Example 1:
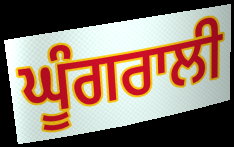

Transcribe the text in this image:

ਘੂੰਗਰਾਲੀ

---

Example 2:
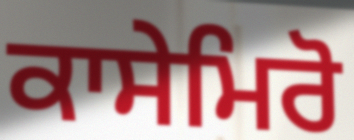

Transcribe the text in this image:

ਕਾਸੇਮਿਰੋ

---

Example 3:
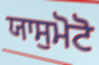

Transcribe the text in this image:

ਯਾਸੁਮੋਟੋ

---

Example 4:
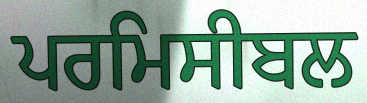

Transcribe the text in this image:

ਪਰਮਿਸੀਬਲ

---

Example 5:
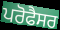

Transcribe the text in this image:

ਪਰੋਫੈਸਰ